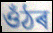
ওঁঠৰ